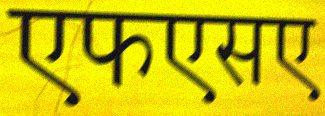
एफएसए